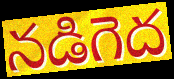
నడిగెద